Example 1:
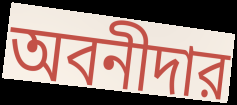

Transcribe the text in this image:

অবনীদার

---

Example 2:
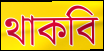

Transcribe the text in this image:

থাকবি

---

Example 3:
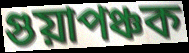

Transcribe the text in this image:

গুয়াপঞ্চক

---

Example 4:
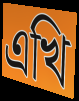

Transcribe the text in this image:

এখি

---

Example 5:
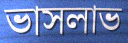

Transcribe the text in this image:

ভাসলাভ